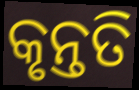
କୃନ୍ତତି